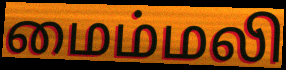
மைம்மலி